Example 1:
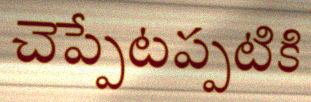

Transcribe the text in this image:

చెప్పేటప్పటికి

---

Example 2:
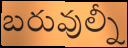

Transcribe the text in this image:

బరువుల్నీ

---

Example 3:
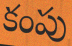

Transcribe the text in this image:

కంపు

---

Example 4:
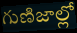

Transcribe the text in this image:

గుణిజాల్లో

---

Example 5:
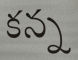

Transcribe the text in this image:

కన్న